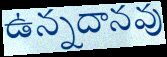
ఉన్నదానవు